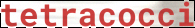
tetracocci